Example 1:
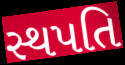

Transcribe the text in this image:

સ્થપતિ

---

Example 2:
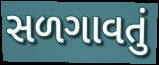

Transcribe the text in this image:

સળગાવતું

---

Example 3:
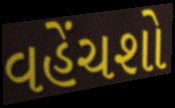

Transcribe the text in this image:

વહેંચશો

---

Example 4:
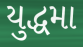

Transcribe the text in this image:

યુદ્ધમા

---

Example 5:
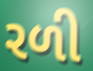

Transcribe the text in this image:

રળી